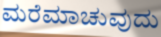
ಮರೆಮಾಚುವುದು